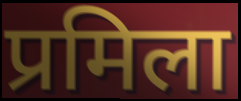
प्रमिला